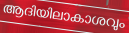
ആദിയിലാകാശവും